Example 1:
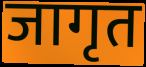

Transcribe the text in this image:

जागृत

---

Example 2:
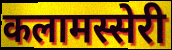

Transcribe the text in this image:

कलामस्सेरी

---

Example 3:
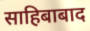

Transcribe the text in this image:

साहिबाबाद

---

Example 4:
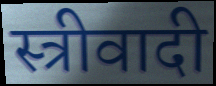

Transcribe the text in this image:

स्त्रीवादी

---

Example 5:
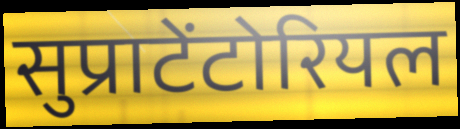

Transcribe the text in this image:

सुप्राटेंटोरियल